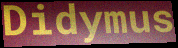
Didymus